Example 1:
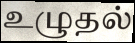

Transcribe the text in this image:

உழுதல்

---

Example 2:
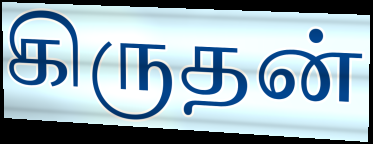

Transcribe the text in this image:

கிருதன்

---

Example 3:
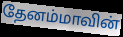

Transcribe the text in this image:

தேனம்மாவின்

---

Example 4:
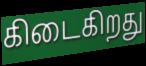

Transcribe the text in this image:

கிடைகிறது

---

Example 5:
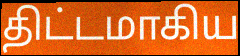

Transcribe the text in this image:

திட்டமாகிய